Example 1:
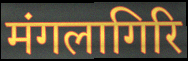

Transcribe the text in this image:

मंगलागिरि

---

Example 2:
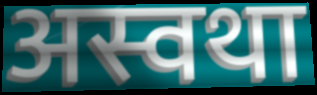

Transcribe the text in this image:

अस्वथा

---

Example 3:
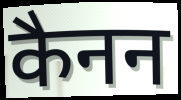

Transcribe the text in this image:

कैनन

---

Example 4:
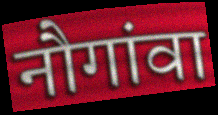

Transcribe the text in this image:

नौगांवा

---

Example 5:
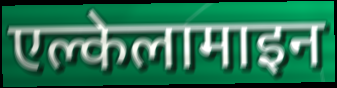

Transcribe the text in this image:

एल्केलामाइन